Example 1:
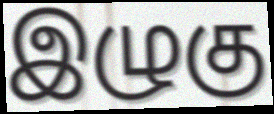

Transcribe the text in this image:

இழுகு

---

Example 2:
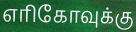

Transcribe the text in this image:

எரிகோவுக்கு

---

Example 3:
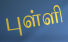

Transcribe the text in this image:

புள்ளி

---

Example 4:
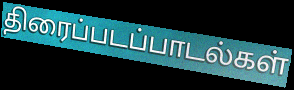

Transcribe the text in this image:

திரைப்படப்பாடல்கள்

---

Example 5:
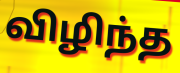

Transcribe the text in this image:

விழிந்த